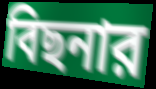
বিছনার